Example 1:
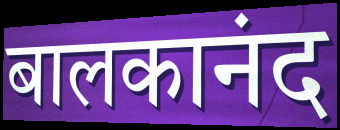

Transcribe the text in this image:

बालकानंद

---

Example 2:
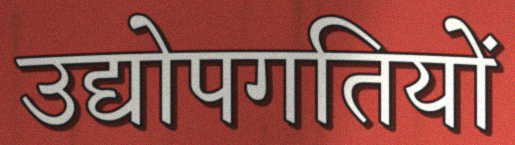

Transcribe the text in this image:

उद्योपगतियों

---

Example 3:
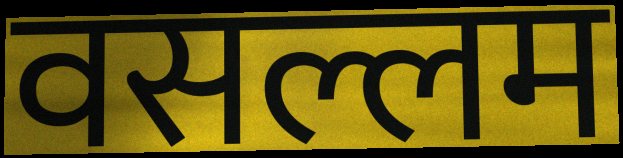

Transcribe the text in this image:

वसल्लम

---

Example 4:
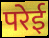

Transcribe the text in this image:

परेई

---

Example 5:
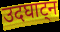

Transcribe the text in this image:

उदघाट्न